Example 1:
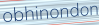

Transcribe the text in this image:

obhinondon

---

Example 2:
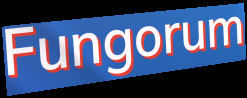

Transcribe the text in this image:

Fungorum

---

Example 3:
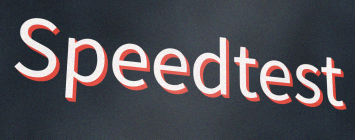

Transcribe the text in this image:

Speedtest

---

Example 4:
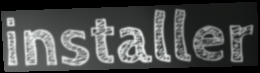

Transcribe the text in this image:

installer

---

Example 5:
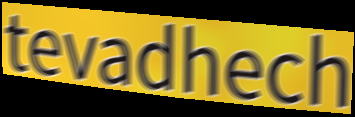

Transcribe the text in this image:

tevadhech